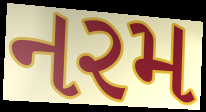
નરમ